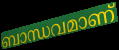
ബാന്ധവമാണ്